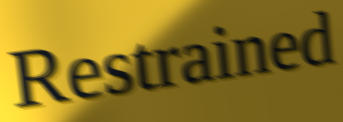
Restrained